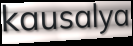
kausalya